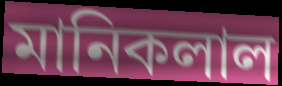
মানিকলাল